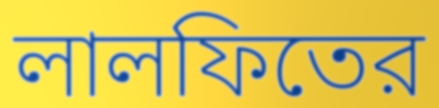
লালফিতের